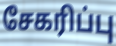
சேகரிப்பு